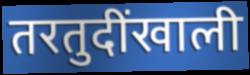
तरतुदींखाली